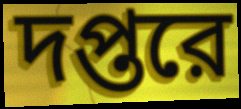
দপ্তরে